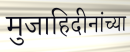
मुजाहिदीनांच्या